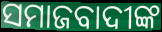
ସମାଜବାଦୀଙ୍କ